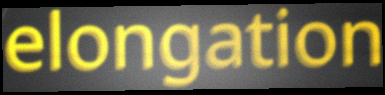
elongation